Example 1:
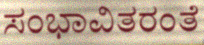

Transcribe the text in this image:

ಸಂಭಾವಿತರಂತೆ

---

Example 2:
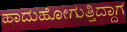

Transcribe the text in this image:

ಹಾದುಹೋಗುತ್ತಿದ್ದಾಗ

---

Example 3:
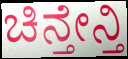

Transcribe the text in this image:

ಚಿನ್ತೇನ್ತಿ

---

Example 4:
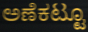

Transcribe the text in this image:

ಅಣೆಕಟ್ಟೂ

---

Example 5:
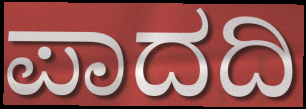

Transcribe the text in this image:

ಪಾದದಿ